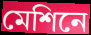
মেশিনে